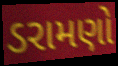
ડરામણો